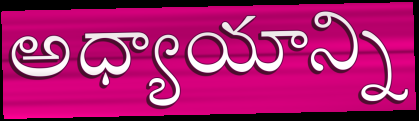
అధ్యాయాన్ని